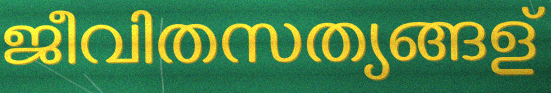
ജീവിതസത്യങ്ങള്